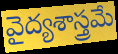
వైద్యశాస్త్రమే